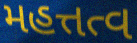
મહત્તત્વ